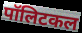
पॉलिटकल